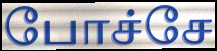
போச்சே